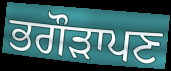
ਭਗੌੜਾਪਣ